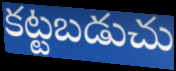
కట్టబడుచు